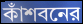
কাঁশবনের